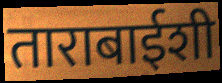
ताराबाईशी